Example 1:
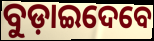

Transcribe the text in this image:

ବୁଡ଼ାଇଦେବେ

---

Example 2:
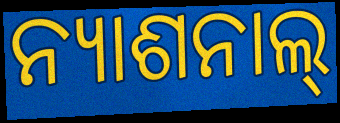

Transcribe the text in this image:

ନ୍ୟାଶନାଲ୍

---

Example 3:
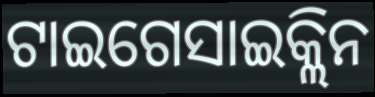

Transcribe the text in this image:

ଟାଇଗେସାଇକ୍ଲିନ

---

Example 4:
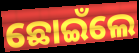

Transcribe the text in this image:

ଛୋଇଁଲେ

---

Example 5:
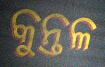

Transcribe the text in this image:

କୁନ୍ତଳ